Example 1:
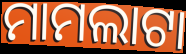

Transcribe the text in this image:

ମାମଲାଟା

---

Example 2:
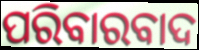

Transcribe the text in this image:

ପରିବାରବାଦ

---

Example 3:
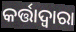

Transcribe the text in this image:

କର୍ତ୍ତାଦ୍ଵାରା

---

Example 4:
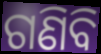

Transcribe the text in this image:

ଗଣିବି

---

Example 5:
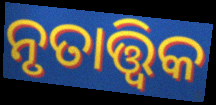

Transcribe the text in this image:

ନୃତାତ୍ତ୍ବିକ